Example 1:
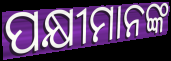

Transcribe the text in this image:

ପକ୍ଷୀମାନଙ୍କ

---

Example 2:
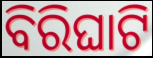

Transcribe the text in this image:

ବିରିଘାଟି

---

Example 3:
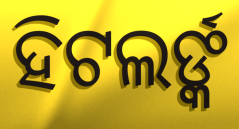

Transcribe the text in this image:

ହିଟଲର୍ଙ୍କ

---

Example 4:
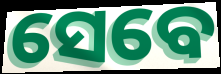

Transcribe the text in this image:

ସେବେ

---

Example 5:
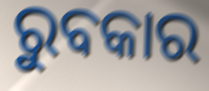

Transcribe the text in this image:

ରୁବକାର